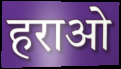
हराओ